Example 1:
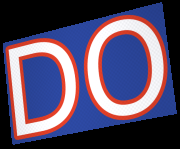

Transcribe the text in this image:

DO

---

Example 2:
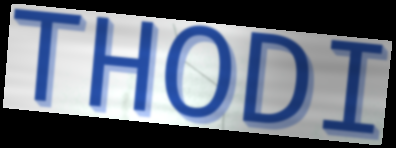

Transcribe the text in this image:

THODI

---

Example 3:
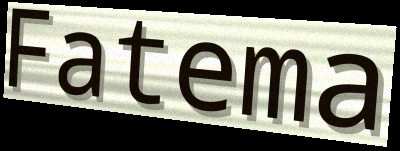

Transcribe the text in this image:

Fatema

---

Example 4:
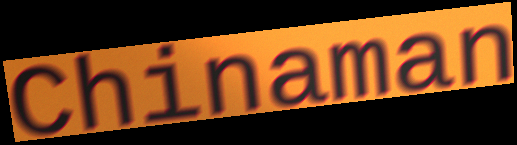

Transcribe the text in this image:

Chinaman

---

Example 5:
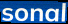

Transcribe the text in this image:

sonal